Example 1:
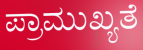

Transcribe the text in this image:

ಪ್ರಾಮುಖ್ಯತೆ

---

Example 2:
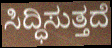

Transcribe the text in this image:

ಸಿದ್ಧಿಸುತ್ತದೆ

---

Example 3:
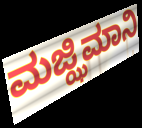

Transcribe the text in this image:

ಮಜ್ಝಿಮಾನಿ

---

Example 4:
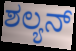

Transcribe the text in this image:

ಶಲ್ಯನ್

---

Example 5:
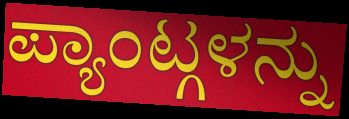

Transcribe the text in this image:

ಪ್ಯಾಂಟ್ಗಳನ್ನು